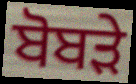
ਬੋਬੜੇ